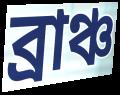
ব্রাঞ্চ